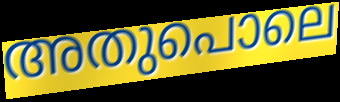
അതുപൊലെ